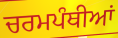
ਚਰਮਪੰਥੀਆਂ